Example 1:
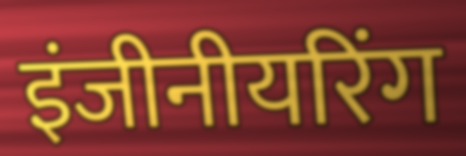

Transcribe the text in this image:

इंजीनीयरिंग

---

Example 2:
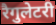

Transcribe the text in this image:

रैगुलेटरी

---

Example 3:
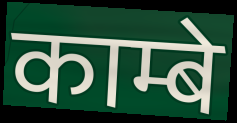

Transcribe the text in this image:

काम्बे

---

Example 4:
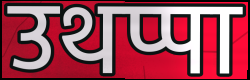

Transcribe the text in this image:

उथप्पा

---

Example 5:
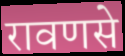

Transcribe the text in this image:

रावणसे